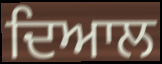
ਦਿਆਲ